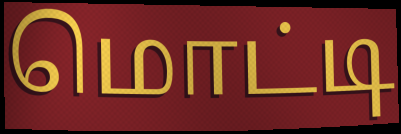
மொட்டி